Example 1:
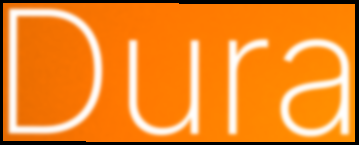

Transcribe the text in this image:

Dura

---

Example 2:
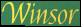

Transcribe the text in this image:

Winsor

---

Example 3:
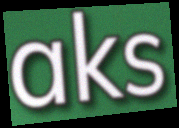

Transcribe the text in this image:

aks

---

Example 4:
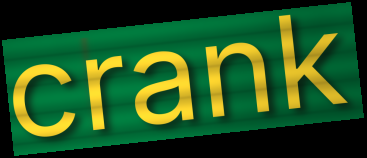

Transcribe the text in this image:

crank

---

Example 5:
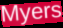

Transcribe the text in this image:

Myers